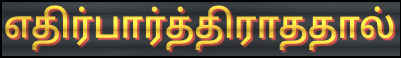
எதிர்பார்த்திராததால்